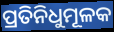
ପ୍ରତିନିଧୁମୂଳକ